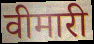
वीमारी